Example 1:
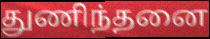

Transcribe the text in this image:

துணிந்தனை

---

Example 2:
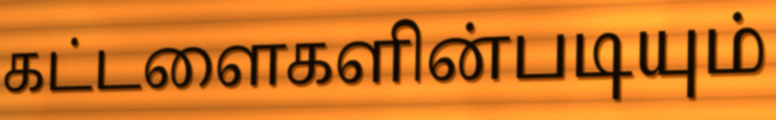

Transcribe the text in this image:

கட்டளைகளின்படியும்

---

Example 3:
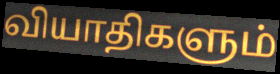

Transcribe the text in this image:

வியாதிகளும்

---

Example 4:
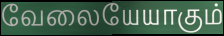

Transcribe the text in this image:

வேலையேயாகும்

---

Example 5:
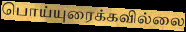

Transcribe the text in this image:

பொய்யுரைக்கவில்லை